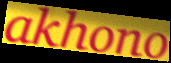
akhono